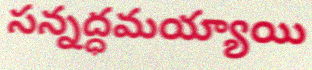
సన్నద్ధమయ్యాయి